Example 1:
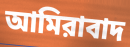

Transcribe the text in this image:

আমিরাবাদ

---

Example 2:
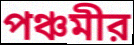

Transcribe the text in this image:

পঞ্চমীর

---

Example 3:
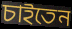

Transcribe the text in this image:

চাইতেন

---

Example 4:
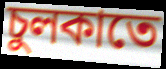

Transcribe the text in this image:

চুলকাতে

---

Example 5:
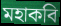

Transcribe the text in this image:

মহাকবি